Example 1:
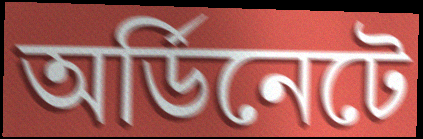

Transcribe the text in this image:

অর্ডিনেটে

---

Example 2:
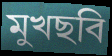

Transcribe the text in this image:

মুখছবি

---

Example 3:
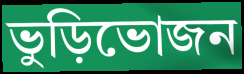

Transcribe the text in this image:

ভুড়িভোজন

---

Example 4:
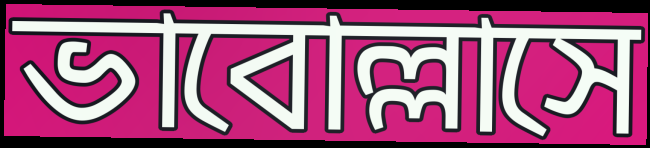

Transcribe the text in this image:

ভাবোল্লাসে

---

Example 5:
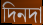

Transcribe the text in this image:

দিনদা